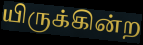
யிருக்கின்ற